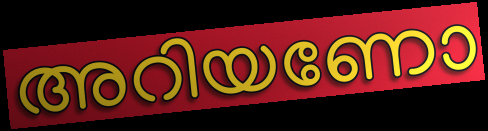
അറിയണോ